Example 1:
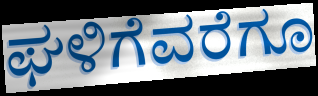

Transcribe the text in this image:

ಘಳಿಗೆವರೆಗೂ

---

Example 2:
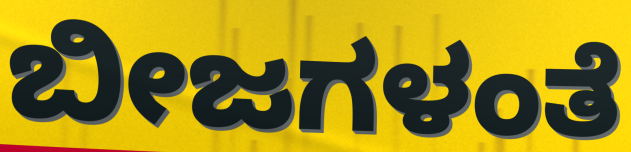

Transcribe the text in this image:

ಬೀಜಗಳಂತೆ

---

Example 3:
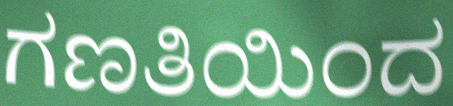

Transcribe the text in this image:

ಗಣತಿಯಿಂದ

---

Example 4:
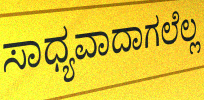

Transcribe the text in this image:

ಸಾಧ್ಯವಾದಾಗಲೆಲ್ಲ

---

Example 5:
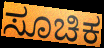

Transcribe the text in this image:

ಸೂಚಿಕ